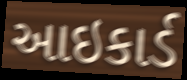
આઇકાર્ડ